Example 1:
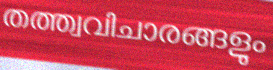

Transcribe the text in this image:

തത്ത്വവിചാരങ്ങളും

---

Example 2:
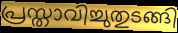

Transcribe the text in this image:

പ്രസ്താവിച്ചുതുടങ്ങി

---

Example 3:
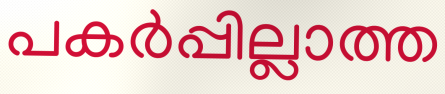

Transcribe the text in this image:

പകർപ്പില്ലാത്ത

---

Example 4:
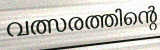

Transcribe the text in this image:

വത്സരത്തിന്റെ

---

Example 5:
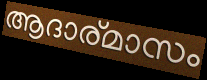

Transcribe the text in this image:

ആദാര്മാസം